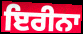
ਇਰੀਨਾ